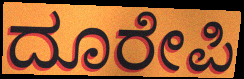
ದೂರೇಪಿ